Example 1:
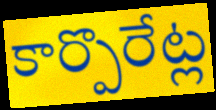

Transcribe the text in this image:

కార్పొరేట్ల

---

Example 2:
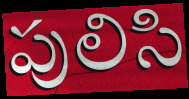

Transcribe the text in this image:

పులిసి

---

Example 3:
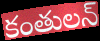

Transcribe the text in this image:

కంతులన్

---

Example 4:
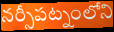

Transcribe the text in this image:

నర్సీపట్నంలోని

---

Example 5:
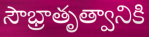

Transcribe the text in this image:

సౌభ్రాతృత్వానికి